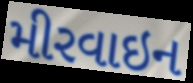
મીરવાઇન